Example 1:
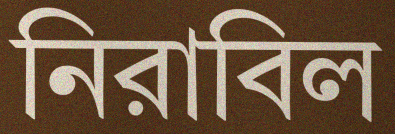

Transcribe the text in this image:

নিরাবিল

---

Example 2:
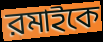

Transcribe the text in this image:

রমাইকে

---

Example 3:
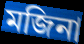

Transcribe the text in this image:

মজিনা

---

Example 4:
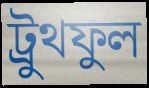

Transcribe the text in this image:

ট্রুথফুল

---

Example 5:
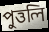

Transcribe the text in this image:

পুত্তলি